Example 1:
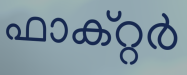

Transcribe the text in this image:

ഫാക്റ്റർ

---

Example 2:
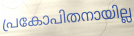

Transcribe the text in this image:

പ്രകോപിതനായില്ല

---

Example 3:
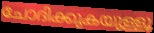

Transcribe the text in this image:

ചോദിക്കുകയുള്ളൂ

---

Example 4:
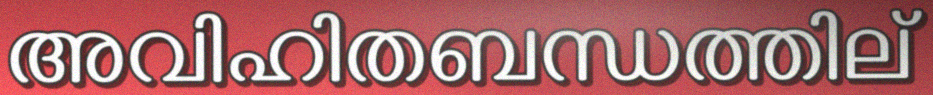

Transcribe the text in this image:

അവിഹിതബന്ധത്തില്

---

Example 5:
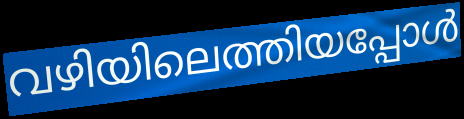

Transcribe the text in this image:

വഴിയിലെത്തിയപ്പോൾ